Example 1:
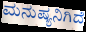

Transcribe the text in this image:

ಮನುಷ್ಯನಿಗಿದೆ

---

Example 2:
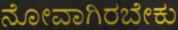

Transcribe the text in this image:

ನೋವಾಗಿರಬೇಕು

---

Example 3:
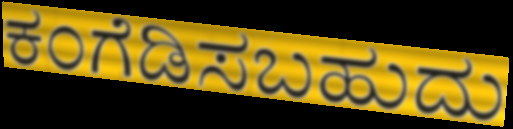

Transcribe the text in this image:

ಕಂಗೆಡಿಸಬಹುದು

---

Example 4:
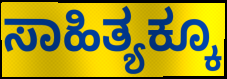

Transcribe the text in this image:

ಸಾಹಿತ್ಯಕ್ಕೂ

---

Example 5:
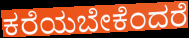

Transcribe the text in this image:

ಕರೆಯಬೇಕೆಂದರೆ